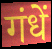
गंधें